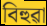
বিহুৱা